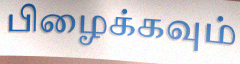
பிழைக்கவும்